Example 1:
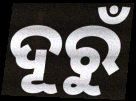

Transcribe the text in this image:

ଦୂରୁଁ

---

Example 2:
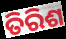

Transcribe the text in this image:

ତିରିଶ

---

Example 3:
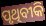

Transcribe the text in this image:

ପୃଥିବୀକି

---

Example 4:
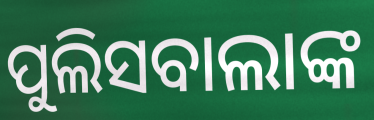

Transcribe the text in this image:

ପୁଲିସବାଲାଙ୍କ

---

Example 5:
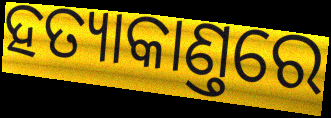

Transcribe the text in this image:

ହତ୍ୟାକାଣ୍ତରେ